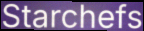
Starchefs